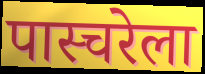
पास्चरेला